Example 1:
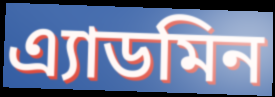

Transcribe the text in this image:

এ্যাডমিন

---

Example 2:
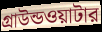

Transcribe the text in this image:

গ্রাউন্ডওয়াটার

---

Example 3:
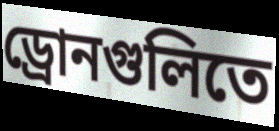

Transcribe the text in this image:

ড্রোনগুলিতে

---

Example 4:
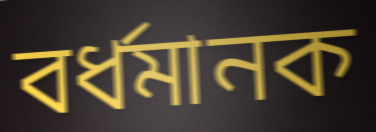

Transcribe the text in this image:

বর্ধমানক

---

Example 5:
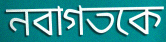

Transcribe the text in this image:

নবাগতকে